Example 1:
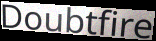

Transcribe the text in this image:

Doubtfire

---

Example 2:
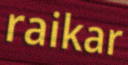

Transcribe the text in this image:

raikar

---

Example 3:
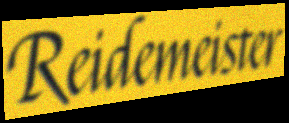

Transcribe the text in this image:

Reidemeister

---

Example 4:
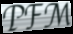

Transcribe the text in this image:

PFM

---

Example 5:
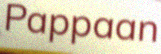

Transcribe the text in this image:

Pappaan